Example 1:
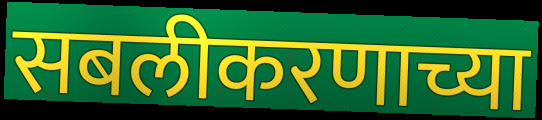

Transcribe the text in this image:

सबलीकरणाच्या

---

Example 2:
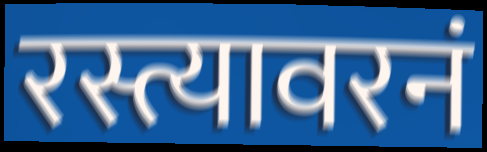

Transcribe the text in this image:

रस्त्यावरनं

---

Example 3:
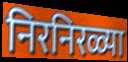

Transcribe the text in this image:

निरनिरळ्या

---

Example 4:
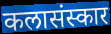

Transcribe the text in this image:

कलासंस्कार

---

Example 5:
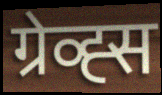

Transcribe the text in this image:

ग्रेव्ह्स